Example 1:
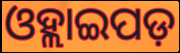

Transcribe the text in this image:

ଓହ୍ଲାଇପଡ଼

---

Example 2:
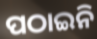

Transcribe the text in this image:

ପଠାଇନି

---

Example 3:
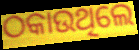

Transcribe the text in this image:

ଠକାଉଥିଲେ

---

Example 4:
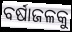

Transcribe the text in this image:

ବର୍ଷାଜଳକୁ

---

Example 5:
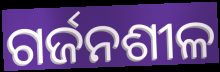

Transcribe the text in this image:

ଗର୍ଜନଶୀଳ